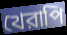
থেরাপি